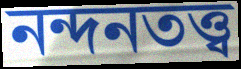
নন্দনতত্ত্ব